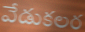
వేడుకలర